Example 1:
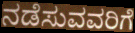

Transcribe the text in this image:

ನಡೆಸುವವರಿಗೆ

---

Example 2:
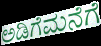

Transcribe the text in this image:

ಅಡಿಗೆಮನೆಗೆ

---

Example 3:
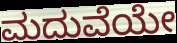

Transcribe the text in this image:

ಮದುವೆಯೇ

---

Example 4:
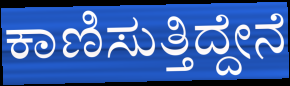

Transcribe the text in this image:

ಕಾಣಿಸುತ್ತಿದ್ದೇನೆ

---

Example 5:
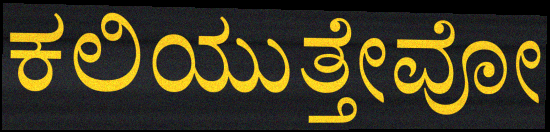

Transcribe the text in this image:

ಕಲಿಯುತ್ತೇವೋ